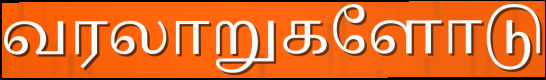
வரலாறுகளோடு